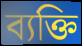
ব্যক্তি